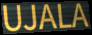
UJALA